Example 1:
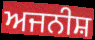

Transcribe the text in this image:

ਅਜਨੀਸ਼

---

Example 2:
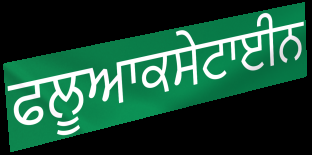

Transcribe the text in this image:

ਫਲੂਆਕਸੇਟਾਈਨ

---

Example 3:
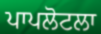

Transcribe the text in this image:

ਪਾਪਲੋਟਲਾ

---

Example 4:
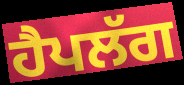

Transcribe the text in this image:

ਹੈਪਲੱਗ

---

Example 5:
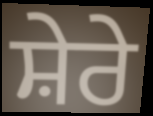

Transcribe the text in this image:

ਸ਼ੇਰੇ